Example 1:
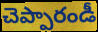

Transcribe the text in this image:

చెప్పారండీ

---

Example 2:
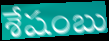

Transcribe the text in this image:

శేషంబు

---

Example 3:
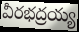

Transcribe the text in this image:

వీరభద్రయ్య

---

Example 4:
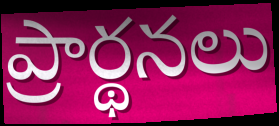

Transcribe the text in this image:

ప్రార్థనలు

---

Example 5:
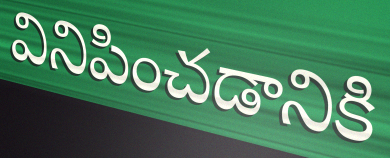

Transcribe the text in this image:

వినిపించడానికి